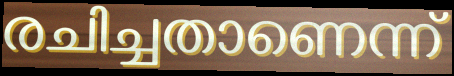
രചിച്ചതാണെന്ന്